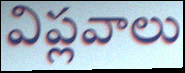
విప్లవాలు